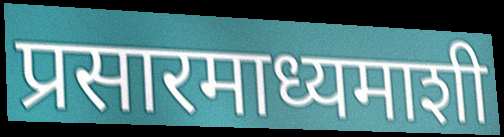
प्रसारमाध्यमाशी